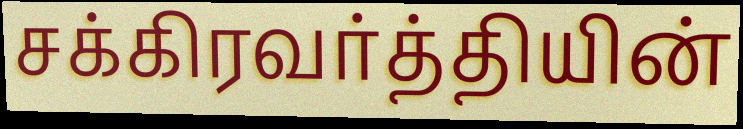
சக்கிரவர்த்தியின்